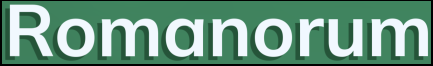
Romanorum